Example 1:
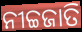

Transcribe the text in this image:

ନୀଚ୍ଚଜାତି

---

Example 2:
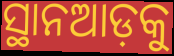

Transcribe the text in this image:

ସ୍ଥାନଆଡ଼କୁ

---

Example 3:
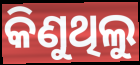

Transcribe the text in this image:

କିଣୁଥିଲୁ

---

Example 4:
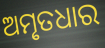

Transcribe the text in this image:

ଅମୃତଧାର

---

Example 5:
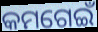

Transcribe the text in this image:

କମଗେଇଁ